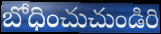
బోధించుచుండిరి